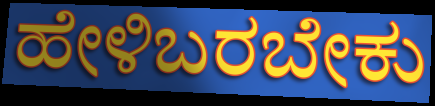
ಹೇಳಿಬರಬೇಕು